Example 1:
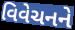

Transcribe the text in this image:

વિવેચનને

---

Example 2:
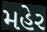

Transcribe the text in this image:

મહેર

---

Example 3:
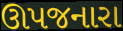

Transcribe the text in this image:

ઊપજનારા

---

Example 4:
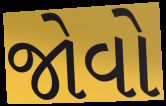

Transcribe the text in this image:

જોવો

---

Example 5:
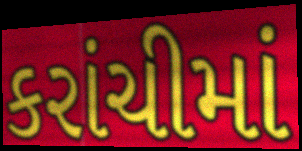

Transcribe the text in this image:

કરાંચીમાં